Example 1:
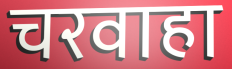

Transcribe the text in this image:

चरवाहा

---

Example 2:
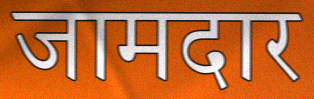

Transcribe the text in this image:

जामदार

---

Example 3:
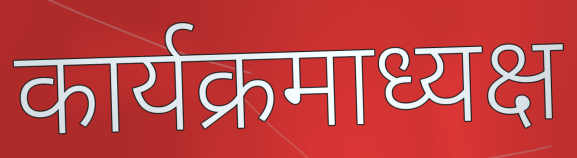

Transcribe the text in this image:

कार्यक्रमाध्यक्ष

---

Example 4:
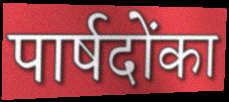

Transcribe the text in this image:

पार्षदोंका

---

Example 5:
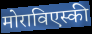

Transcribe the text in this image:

मोराविएस्की